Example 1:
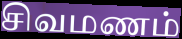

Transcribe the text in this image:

சிவமணம்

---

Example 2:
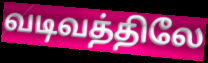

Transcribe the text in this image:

வடிவத்திலே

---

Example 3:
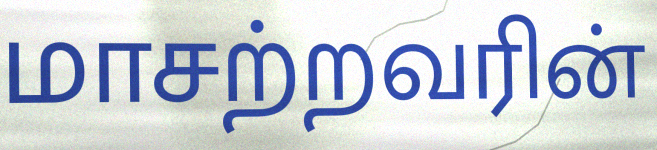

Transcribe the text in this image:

மாசற்றவரின்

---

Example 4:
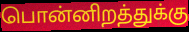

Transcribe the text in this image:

பொன்னிறத்துக்கு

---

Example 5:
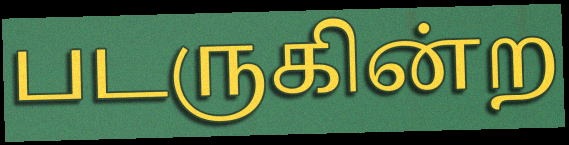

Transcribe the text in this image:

படருகின்ற